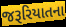
જરૂરિયાતના